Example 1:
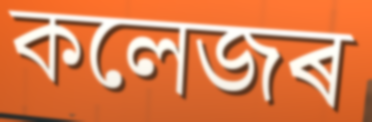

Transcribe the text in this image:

কলেজৰ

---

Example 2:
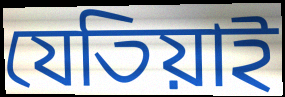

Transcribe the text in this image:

যেতিয়াই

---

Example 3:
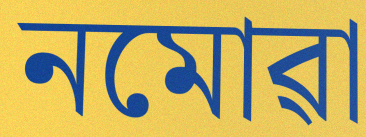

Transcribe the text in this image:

নমোৱা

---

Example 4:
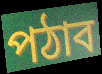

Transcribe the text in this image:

পঠাব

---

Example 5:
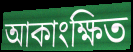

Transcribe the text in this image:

আকাংক্ষিত